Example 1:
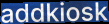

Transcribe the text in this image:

addkiosk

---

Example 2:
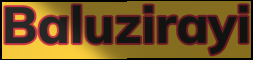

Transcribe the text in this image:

Baluzirayi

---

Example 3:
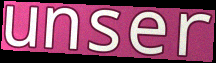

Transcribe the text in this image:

unser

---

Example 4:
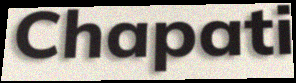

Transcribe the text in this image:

Chapati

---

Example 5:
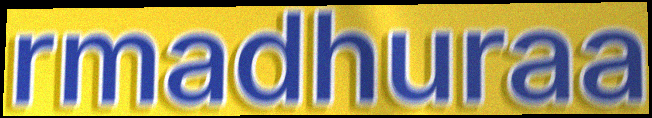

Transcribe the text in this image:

rmadhuraa